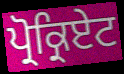
ਪ੍ਰੋਕ੍ਰਿਏਟ